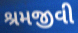
શ્રમજીવી